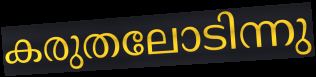
കരുതലോടിന്നു